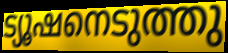
ട്യൂഷനെടുത്തു